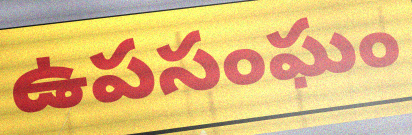
ఉపసంఘం